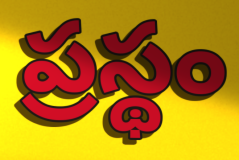
ప్రస్థం